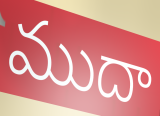
ముదా